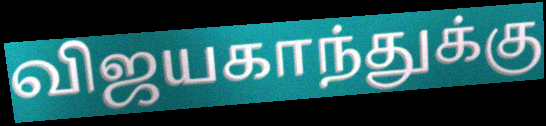
விஜயகாந்துக்கு